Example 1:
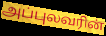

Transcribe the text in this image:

அப்புலவரின்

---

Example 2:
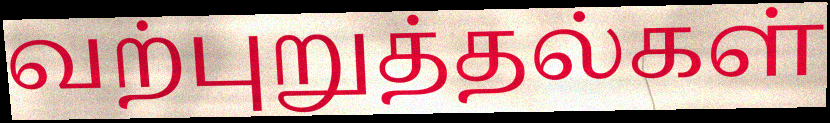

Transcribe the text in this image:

வற்புறுத்தல்கள்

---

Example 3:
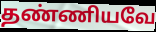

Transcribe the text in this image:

தண்ணியவே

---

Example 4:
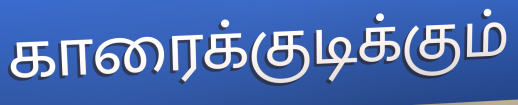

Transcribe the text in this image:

காரைக்குடிக்கும்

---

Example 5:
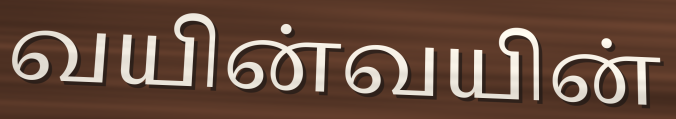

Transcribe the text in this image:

வயின்வயின்